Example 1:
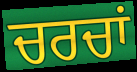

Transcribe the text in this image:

ਚਰਚਾਂ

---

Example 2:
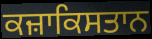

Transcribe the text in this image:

ਕਜ਼ਾਕਿਸਤਾਨ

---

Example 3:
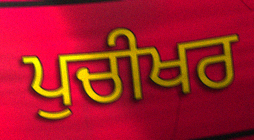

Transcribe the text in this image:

ਪੁਚੀਖਰ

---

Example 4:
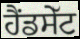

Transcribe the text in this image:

ਹੈਂਡਸੇੱਟ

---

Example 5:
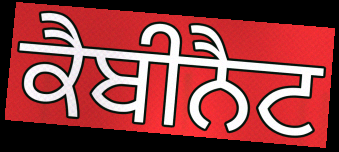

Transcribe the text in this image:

ਕੈਬੀਨੈਟ